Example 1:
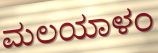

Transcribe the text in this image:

ಮಲಯಾಳಂ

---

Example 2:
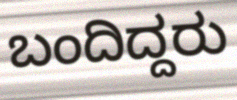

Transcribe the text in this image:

ಬಂದಿದ್ದರು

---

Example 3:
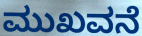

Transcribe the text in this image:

ಮುಖವನೆ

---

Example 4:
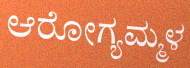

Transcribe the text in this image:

ಆರೋಗ್ಯಮ್ಮಳ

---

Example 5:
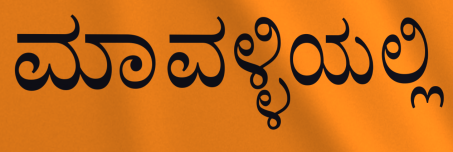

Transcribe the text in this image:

ಮಾವಳ್ಳಿಯಲ್ಲಿ